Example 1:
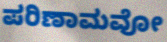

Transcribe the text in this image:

ಪರಿಣಾಮವೋ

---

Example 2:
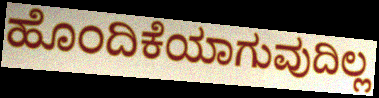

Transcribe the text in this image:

ಹೊಂದಿಕೆಯಾಗುವುದಿಲ್ಲ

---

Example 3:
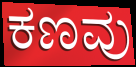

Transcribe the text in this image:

ಕಣವು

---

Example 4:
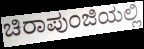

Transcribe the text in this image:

ಚಿರಾಪುಂಜಿಯಲ್ಲಿ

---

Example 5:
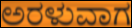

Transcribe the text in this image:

ಅರಳುವಾಗ